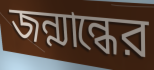
জন্মান্ধের